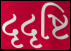
દૃદૃષ્ટિ